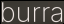
burra